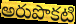
అరుపొకటి